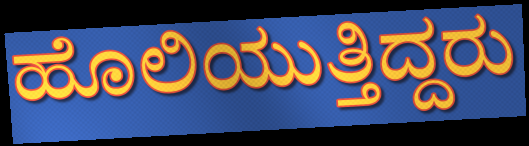
ಹೊಲಿಯುತ್ತಿದ್ದರು